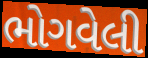
ભોગવેલી